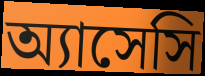
অ্যাসেসি